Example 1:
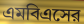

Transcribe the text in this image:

এমবিএসের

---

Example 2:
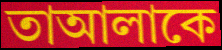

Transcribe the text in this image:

তাআলাকে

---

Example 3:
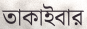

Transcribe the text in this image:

তাকাইবার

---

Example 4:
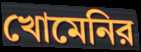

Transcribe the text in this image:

খোমেনির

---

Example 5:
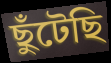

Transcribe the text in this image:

ছুঁটেছি